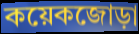
কয়েকজোড়া